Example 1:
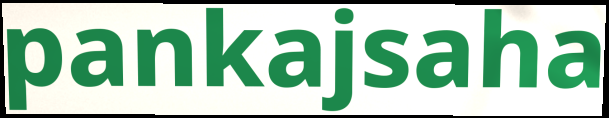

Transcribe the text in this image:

pankajsaha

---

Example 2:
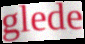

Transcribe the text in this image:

glede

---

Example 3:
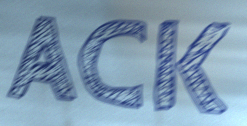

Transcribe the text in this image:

ACK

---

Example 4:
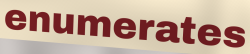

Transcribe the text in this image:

enumerates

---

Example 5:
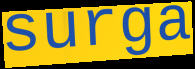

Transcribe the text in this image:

surga